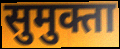
सुमुक्ता